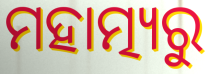
ମହାତ୍ମ୍ୟରୁ